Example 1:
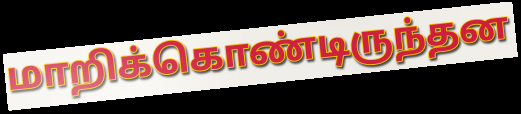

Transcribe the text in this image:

மாறிக்கொண்டிருந்தன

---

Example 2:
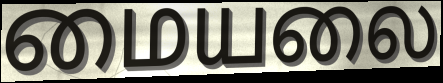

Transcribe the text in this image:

மையலை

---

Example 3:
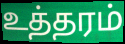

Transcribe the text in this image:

உத்தரம்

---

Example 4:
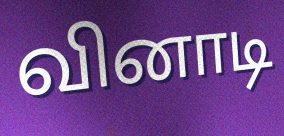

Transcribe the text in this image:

வினாடி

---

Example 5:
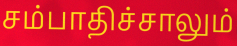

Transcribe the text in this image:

சம்பாதிச்சாலும்